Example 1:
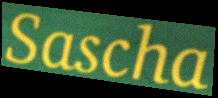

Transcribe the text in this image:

Sascha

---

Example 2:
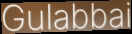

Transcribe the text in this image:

Gulabbai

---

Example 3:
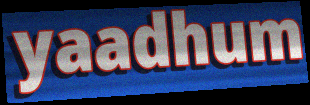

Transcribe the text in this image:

yaadhum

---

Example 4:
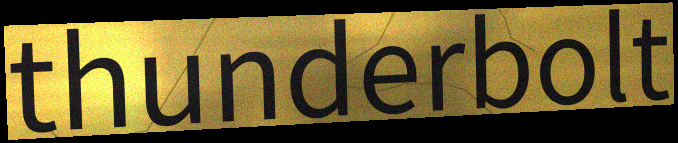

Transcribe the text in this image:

thunderbolt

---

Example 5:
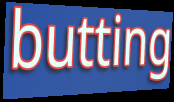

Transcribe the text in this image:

butting